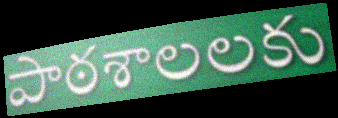
పాఠశాలలకు